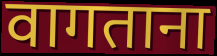
वागताना